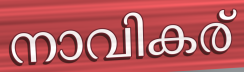
നാവികര്